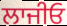
ਲਾਜੀਓ